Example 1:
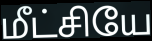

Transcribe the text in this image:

மீட்சியே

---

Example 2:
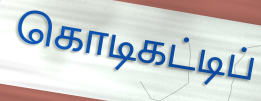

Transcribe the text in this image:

கொடிகட்டிப்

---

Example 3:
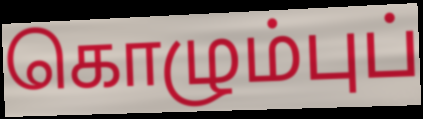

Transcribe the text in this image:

கொழும்புப்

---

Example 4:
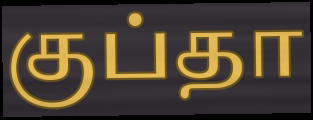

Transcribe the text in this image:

குப்தா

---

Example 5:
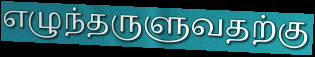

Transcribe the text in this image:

எழுந்தருளுவதற்கு